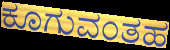
ಕೂಗುವಂತಹ